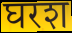
घरश